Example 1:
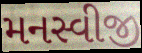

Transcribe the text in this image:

મનસ્વીજી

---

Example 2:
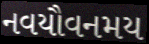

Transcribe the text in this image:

નવયૌવનમય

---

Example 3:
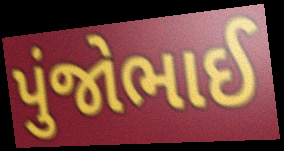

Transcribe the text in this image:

પુંજોભાઈ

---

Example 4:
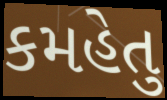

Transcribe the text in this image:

કમહેતુ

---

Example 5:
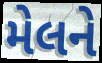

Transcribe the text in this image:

મેલને